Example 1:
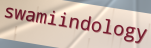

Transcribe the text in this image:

swamiindology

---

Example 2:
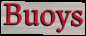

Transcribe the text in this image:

Buoys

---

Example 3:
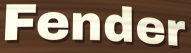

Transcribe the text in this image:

Fender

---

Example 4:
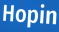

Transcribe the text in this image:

Hopin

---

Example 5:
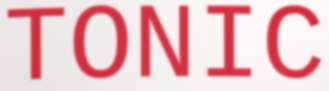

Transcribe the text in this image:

TONIC